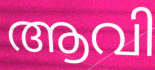
ആവി